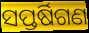
ସପ୍ତର୍ଷିଗଣ